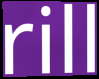
rill